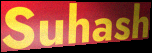
Suhash